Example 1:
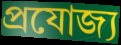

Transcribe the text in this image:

প্ৰযোজ্য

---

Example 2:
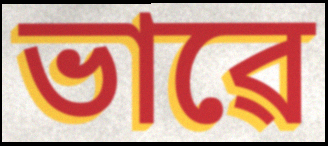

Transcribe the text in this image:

ভাৱে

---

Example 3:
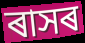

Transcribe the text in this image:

ৰাসৰ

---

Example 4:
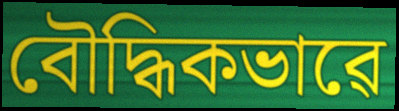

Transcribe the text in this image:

বৌদ্ধিকভাৱে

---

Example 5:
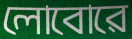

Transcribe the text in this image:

লোবোৱে